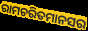
ରାମଚରିତମାନସର